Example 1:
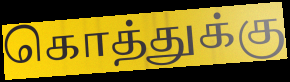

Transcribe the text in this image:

கொத்துக்கு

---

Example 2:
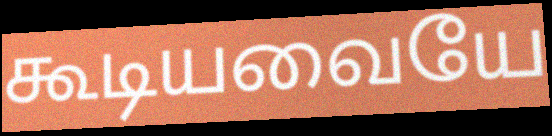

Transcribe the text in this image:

கூடியவையே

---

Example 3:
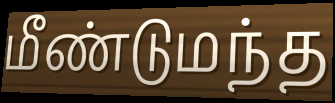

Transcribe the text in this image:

மீண்டுமந்த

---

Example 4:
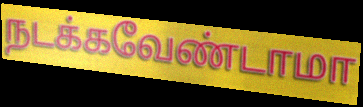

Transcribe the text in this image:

நடக்கவேண்டாமா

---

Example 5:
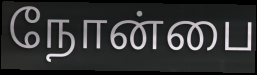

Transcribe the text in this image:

நோன்பை